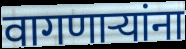
वागणार्‍यांना